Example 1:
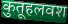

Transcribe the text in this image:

कुतूहलवश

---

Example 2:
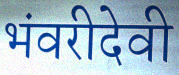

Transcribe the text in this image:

भंवरीदेवी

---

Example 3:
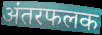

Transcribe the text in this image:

अंतरफलक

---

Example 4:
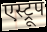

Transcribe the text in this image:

एस्ट्रूप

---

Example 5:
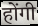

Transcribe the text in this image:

होंगी